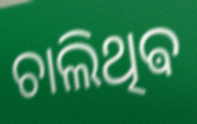
ଚାଲିଥିଵ